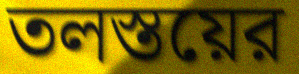
তলস্তয়ের